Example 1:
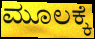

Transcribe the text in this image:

ಮೂಲಕ್ಕೆ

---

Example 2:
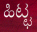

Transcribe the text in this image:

ಹಿಟ್ಟ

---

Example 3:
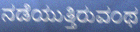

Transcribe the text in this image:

ನಡೆಯುತ್ತಿರುವಂಥ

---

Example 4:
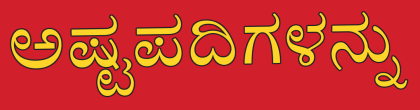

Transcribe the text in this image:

ಅಷ್ಟಪದಿಗಳನ್ನು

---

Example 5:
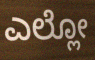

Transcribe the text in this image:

ಎಲ್ಲೋ